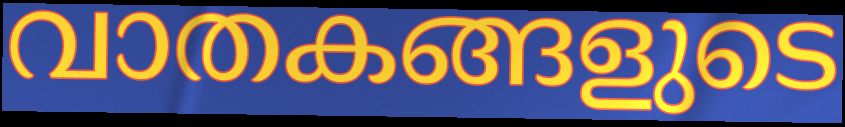
വാതകങ്ങളുടെ